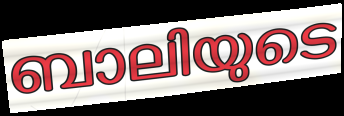
ബാലിയുടെ